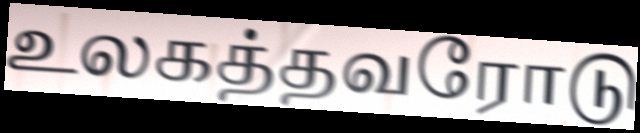
உலகத்தவரோடு